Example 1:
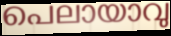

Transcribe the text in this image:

പെലായാവു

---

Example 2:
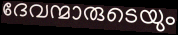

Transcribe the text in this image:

ദേവന്മാരുടെയും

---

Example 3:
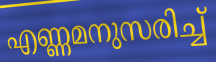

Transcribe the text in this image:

എണ്ണമനുസരിച്ച്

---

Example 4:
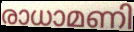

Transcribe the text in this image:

രാധാമണി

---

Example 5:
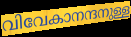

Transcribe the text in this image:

വിവേകാനന്ദനുള്ള